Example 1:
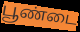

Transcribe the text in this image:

பூண்டை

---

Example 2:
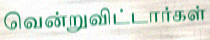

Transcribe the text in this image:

வென்றுவிட்டார்கள்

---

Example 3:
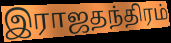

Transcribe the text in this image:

இராஜதந்திரம்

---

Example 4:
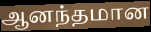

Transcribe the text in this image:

ஆனந்தமான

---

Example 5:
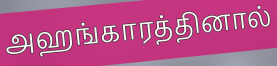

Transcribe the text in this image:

அஹங்காரத்தினால்